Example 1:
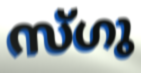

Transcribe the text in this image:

സ്ഗു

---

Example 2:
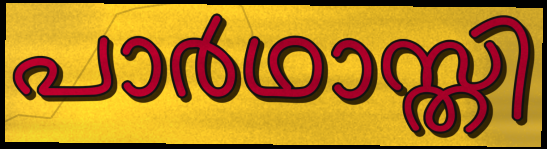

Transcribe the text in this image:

പാർഥാസ്തി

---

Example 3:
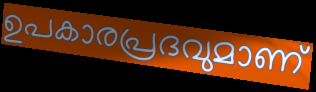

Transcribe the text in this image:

ഉപകാരപ്രദവുമാണ്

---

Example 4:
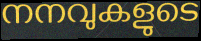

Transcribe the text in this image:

നനവുകളുടെ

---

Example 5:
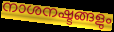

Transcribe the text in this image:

നാശനഷ്ടങ്ങളും